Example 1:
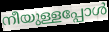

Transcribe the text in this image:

നീയുള്ളപ്പോൾ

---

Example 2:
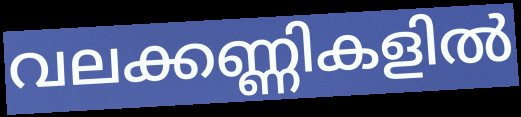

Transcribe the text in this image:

വലക്കണ്ണികളിൽ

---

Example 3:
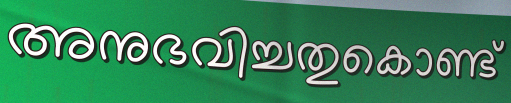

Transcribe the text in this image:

അനുഭവിച്ചതുകൊണ്ട്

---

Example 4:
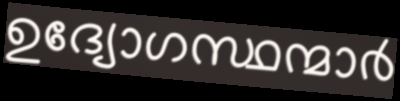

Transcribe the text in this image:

ഉദ്യോഗസ്ഥന്മാർ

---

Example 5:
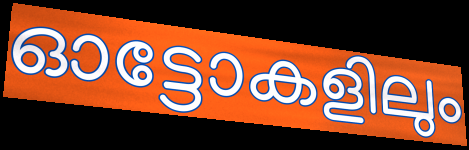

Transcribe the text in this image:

ഓട്ടോകളിലും